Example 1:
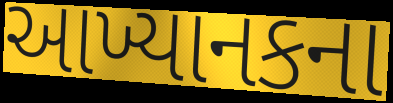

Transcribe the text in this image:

આખ્યાનકના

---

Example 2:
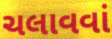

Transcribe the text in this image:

ચલાવવાં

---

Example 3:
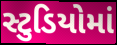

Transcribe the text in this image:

સ્ટુડિયોમાં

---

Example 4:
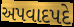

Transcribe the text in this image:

અપવાદપદે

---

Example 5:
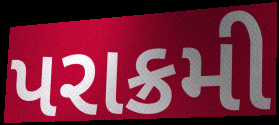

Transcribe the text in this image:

પરાક્રમી